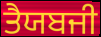
ਤੈਯਬਜੀ